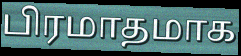
பிரமாதமாக